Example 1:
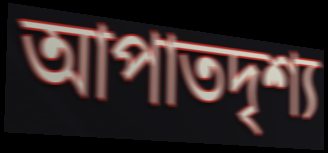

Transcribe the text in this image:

আপাতদৃশ্য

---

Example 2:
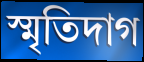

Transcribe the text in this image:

স্মৃতিদাগ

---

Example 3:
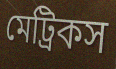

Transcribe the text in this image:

মেট্রিকস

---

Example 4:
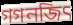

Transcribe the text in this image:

গগনজিৎ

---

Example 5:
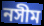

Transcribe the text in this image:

নসীম